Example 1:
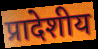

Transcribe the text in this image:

प्रादेशीय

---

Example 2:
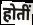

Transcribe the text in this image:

होतीं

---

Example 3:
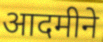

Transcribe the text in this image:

आदमीने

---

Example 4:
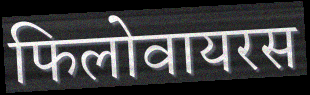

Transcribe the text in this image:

फिलोवायरस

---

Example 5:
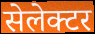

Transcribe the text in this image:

सेलेक्टर